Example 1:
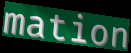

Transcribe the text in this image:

mation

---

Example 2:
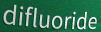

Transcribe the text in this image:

difluoride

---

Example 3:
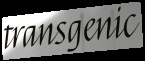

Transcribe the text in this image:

transgenic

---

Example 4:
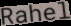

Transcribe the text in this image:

Rahel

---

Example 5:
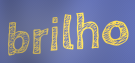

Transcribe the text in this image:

brilho